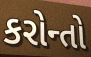
કરોન્તો